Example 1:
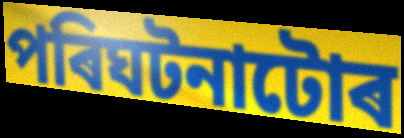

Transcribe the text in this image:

পৰিঘটনাটোৰ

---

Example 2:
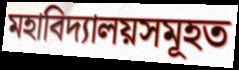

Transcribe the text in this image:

মহাবিদ্যালয়সমূহত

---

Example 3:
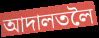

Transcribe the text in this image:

আদালতলৈ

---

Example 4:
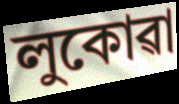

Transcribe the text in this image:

লুকোৱা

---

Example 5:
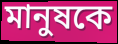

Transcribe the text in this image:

মানুষকে